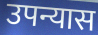
उपन्यास